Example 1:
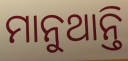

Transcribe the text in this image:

ମାନୁଥାନ୍ତି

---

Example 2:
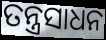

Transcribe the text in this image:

ତନ୍ତ୍ରସାଧନ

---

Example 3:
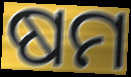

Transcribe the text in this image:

ଷମ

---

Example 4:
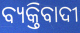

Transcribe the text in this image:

ବ୍ୟକ୍ତିବାଦୀ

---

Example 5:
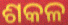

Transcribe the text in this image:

ଶକଳ